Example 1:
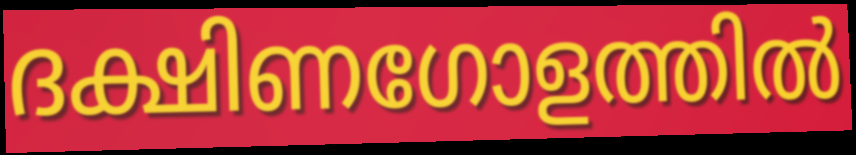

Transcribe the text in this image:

ദക്ഷിണഗോളത്തിൽ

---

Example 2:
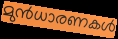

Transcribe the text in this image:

മുൻധാരണകൾ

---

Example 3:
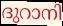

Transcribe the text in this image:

ദുറാനി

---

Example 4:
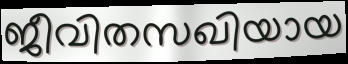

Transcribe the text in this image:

ജീവിതസഖിയായ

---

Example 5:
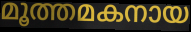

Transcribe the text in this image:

മൂത്തമകനായ